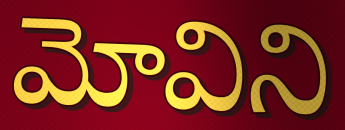
మోవిని